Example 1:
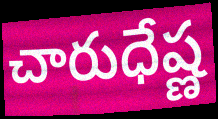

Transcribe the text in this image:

చారుధేష్ణ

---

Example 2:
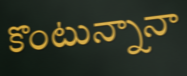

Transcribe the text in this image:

కొంటున్నానా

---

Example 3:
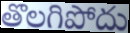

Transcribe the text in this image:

తొలగిపోదు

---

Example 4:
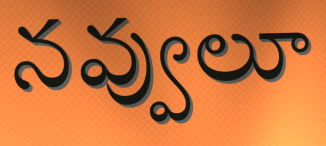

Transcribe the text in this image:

నవ్వులూ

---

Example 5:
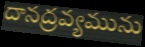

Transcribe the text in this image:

దానద్రవ్యమును